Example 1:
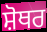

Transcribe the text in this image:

ਸ਼ੋਥਰ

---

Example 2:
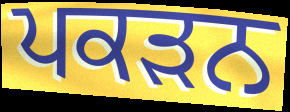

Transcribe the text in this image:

ਪਕੜਨ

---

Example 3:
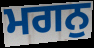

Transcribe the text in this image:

ਮਗਨੁ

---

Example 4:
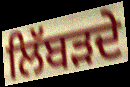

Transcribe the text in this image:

ਲਿੱਬੜਦੇ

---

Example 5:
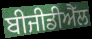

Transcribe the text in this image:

ਬੀਜੀਡੀਐੱਲ